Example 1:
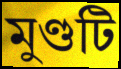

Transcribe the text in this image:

মুণ্ডটি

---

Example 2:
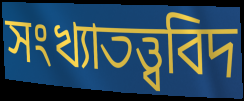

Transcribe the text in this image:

সংখ্যাতত্ত্ববিদ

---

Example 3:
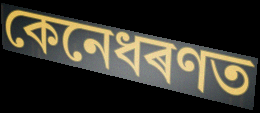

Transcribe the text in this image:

কেনেধৰণত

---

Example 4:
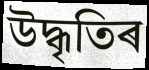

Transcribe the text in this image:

উদ্ধৃতিৰ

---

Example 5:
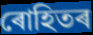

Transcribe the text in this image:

ৰোহিতৰ